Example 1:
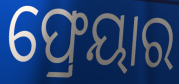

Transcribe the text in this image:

ଫ୍ରେୟାର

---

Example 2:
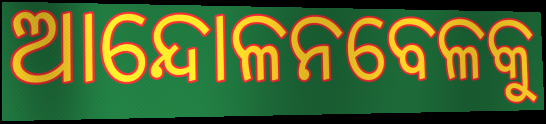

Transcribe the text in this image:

ଆନ୍ଦୋଳନବେଳକୁ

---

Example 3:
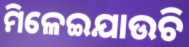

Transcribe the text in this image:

ମିଳେଇଯାଉଚି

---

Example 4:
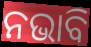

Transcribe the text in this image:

ନଭାବି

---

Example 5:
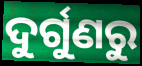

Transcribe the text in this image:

ଦୁର୍ଗୁଣରୁ